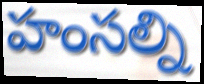
హంసల్ని